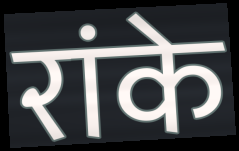
रांके